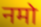
नमो